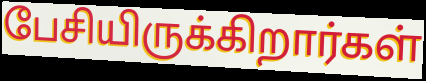
பேசியிருக்கிறார்கள்